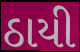
ઠાયી